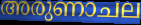
അരുണാചല